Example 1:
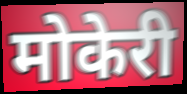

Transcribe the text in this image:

मोकेरी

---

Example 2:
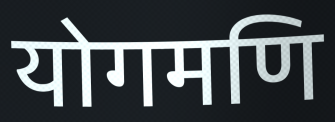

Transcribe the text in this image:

योगमणि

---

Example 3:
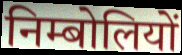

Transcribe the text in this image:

निम्बोलियों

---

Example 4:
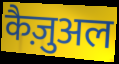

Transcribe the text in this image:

कैज़ुअल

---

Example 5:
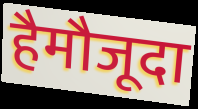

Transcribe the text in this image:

हैमौजूदा